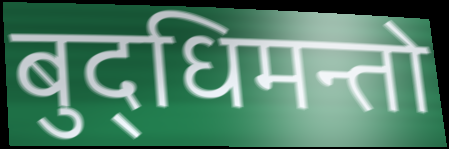
बुद्धिमन्तो